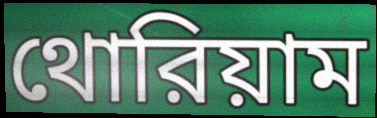
থোরিয়াম